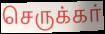
செருக்கர்